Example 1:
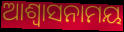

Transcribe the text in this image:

ଆଶ୍ୱାସନାମୟ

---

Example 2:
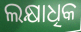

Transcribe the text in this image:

ଲକ୍ଷାଧିକ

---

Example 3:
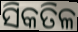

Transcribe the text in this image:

ସିକତିଳ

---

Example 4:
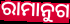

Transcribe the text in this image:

ରାମାନୁଗ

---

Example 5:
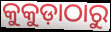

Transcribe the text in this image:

କୁକୁଡ଼ାଠାରୁ